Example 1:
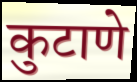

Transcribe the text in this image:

कुटाणे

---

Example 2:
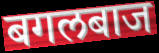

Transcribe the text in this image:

बगलबाज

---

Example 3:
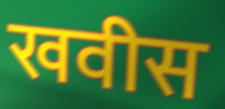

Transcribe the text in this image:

खवीस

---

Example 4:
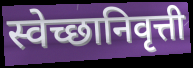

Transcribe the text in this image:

स्वेच्छानिवृत्ती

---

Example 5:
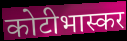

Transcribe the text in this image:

कोटीभास्कर